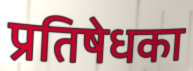
प्रतिषेधका